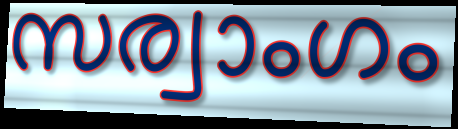
സര്വാംഗം